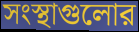
সংস্থাগুলোর